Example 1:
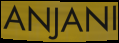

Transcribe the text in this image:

ANJANI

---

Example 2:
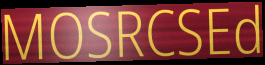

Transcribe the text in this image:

MOSRCSEd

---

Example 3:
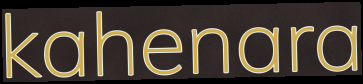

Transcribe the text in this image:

kahenara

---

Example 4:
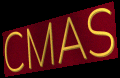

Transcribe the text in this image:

CMAS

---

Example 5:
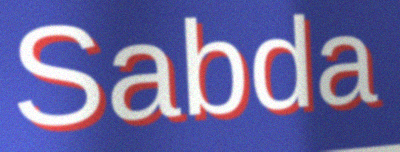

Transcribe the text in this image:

Sabda